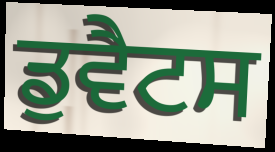
ਡੁਵੈਟਸ